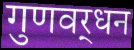
गुणवर्धन